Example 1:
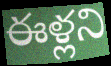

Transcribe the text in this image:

ఈళ్లని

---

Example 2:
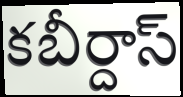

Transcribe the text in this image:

కబీర్దాస్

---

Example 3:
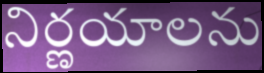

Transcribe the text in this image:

నిర్ణయాలను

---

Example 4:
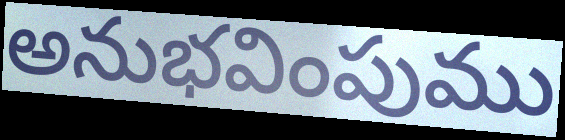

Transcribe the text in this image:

అనుభవింపుము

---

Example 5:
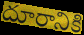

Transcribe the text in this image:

దూరానికి